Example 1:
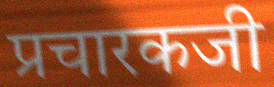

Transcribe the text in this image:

प्रचारकजी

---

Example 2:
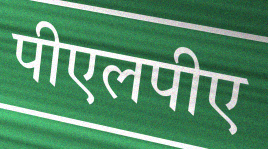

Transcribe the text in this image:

पीएलपीए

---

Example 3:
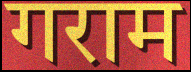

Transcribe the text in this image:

गराम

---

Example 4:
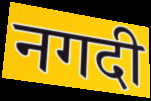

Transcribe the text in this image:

नगदी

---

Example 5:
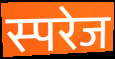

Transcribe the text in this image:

स्परेज